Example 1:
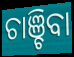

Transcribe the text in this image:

ଚାଞ୍ଚିବା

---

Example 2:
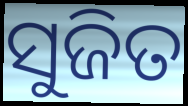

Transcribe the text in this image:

ସୁଜିତ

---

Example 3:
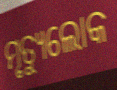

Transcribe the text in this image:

ମୃତ୍ୟୁଲୋକ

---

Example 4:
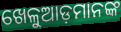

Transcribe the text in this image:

ଖେଳୁଆଡ଼ମାନଙ୍କ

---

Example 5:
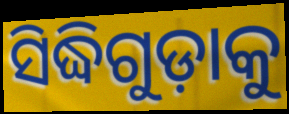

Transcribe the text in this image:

ସିଦ୍ଧିଗୁଡ଼ାକୁ